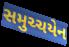
સમુચ્ચયેન